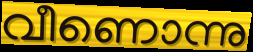
വീണൊന്നു